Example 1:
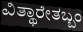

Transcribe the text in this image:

ವಿತ್ಥಾರೇತಬ್ಬಂ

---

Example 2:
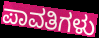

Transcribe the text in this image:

ಪಾವತಿಗಳು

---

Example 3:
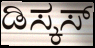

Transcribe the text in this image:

ಡಿಸ್ಕಸ್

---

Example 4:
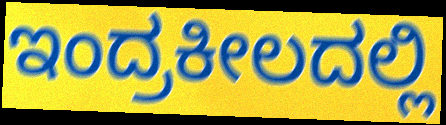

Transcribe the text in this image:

ಇಂದ್ರಕೀಲದಲ್ಲಿ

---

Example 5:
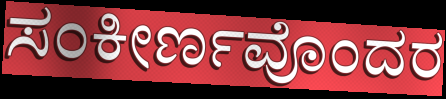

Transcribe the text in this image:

ಸಂಕೀರ್ಣವೊಂದರ